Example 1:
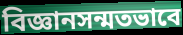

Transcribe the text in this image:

বিজ্ঞানসন্মতভাবে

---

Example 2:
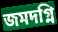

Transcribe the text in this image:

জমদগ্নি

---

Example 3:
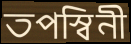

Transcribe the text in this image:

তপস্বিনী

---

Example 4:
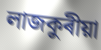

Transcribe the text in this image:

লাজকুৰীয়া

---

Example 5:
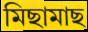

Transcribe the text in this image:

মিছামাছ